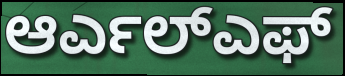
ಆರ್ಎಲ್ಎಫ್